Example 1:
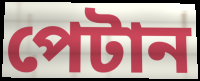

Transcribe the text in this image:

পেটান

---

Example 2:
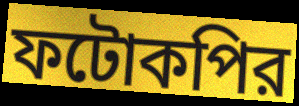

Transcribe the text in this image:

ফটোকপির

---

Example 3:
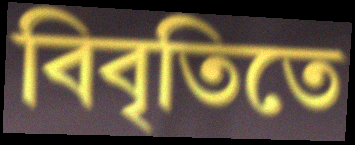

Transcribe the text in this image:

বিবৃতিতে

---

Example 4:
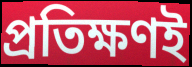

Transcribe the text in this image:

প্রতিক্ষণই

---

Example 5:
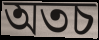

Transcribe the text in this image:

অতচ